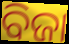
ବିଜା